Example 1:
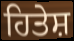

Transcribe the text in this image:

ਹਿਤੇਸ਼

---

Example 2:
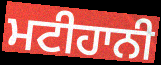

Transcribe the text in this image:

ਮਟੀਹਾਨੀ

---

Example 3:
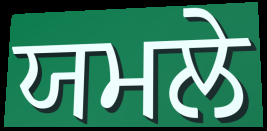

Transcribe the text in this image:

ਯਮਲੇ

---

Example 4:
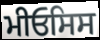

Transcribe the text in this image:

ਮੀਓਸਿਸ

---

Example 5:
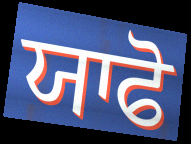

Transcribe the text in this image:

ਯਾਫੋ